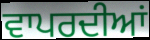
ਵਾਪਰਦੀਆਂ